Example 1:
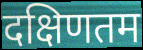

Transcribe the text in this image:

दक्षिणतम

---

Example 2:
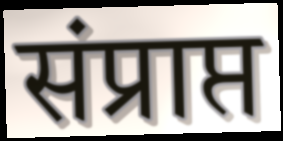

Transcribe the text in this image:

संप्राप्त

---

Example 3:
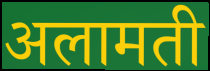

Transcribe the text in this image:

अलामती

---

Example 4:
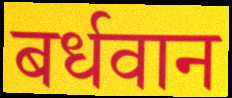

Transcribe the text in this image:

बर्धवान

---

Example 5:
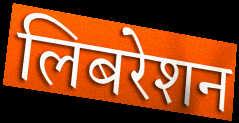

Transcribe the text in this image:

लिबरेशन